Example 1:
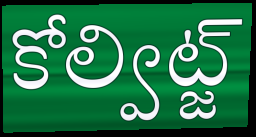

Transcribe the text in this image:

కోల్విట్జ్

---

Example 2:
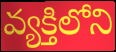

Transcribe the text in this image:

వ్యక్తిలోని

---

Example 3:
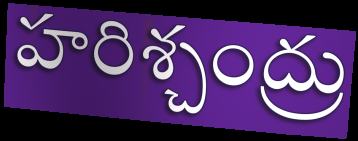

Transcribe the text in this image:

హరిశ్చంద్రు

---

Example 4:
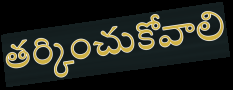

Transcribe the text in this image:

తర్కించుకోవాలి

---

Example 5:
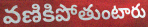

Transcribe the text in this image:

వణికిపోతుంటారు